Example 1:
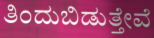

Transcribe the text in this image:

ತಿಂದುಬಿಡುತ್ತೇವೆ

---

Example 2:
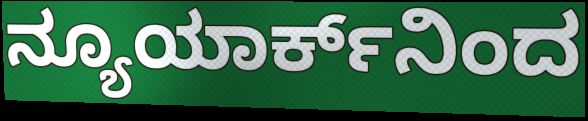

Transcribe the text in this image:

ನ್ಯೂಯಾರ್ಕ್‌ನಿಂದ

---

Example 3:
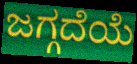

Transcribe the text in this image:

ಜಗ್ಗದೆಯೆ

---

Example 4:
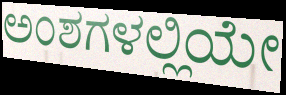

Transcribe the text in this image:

ಅಂಶಗಳಲ್ಲಿಯೇ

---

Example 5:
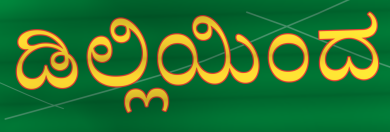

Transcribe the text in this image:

ಡಿಲ್ಲಿಯಿಂದ